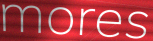
mores